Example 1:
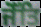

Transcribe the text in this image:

ਜੋੱਤਿ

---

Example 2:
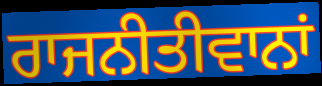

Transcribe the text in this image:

ਰਾਜਨੀਤੀਵਾਨਾਂ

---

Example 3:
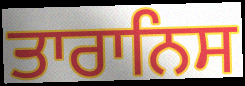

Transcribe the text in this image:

ਤਾਰਾਨਿਸ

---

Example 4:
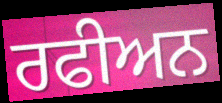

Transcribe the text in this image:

ਰਫੀਅਨ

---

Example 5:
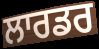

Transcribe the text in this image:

ਲਾਰਡਰ